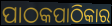
ପାଠକପାଠିକାର